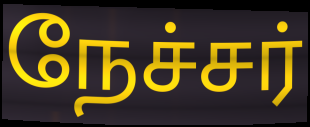
நேச்சர்